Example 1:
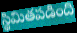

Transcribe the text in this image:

స్థిమితపడింది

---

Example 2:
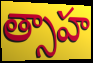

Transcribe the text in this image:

త్సాహ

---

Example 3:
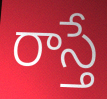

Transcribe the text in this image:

రాస్తే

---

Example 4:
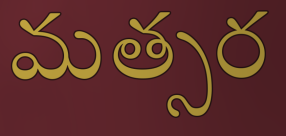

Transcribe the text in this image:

మత్సర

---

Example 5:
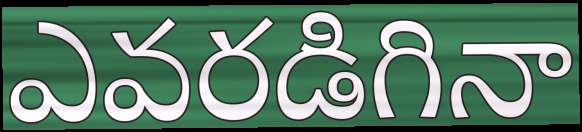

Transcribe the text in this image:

ఎవరడిగినా